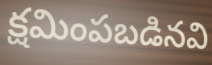
క్షమింపబడినవి